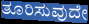
ತೂರಿಸುವುದೇ